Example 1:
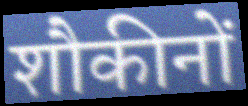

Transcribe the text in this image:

शौकीनों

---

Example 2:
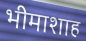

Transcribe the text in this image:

भीमाशाह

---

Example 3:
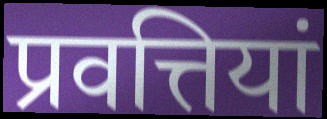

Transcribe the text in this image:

प्रवत्तियां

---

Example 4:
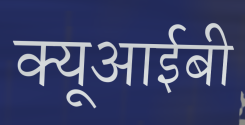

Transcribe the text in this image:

क्यूआईबी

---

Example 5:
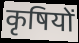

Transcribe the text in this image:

कृषियों